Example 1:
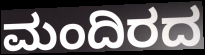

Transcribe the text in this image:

ಮಂದಿರದ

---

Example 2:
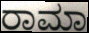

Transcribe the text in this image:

ರಾಮಾ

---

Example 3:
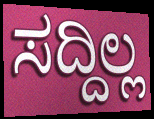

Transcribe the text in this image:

ಸದ್ದಿಲ್ಲ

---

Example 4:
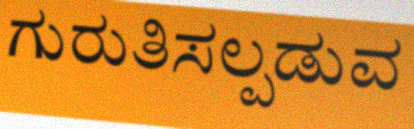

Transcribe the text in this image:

ಗುರುತಿಸಲ್ಪಡುವ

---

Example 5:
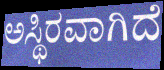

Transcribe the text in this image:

ಅಸ್ಥಿರವಾಗಿದೆ